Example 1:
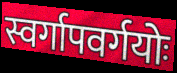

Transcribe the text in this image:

स्वर्गापवर्गयोः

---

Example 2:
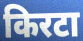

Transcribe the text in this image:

किरटा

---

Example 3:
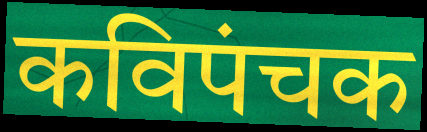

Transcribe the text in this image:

कविपंचक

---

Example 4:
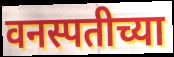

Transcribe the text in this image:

वनस्पतीच्या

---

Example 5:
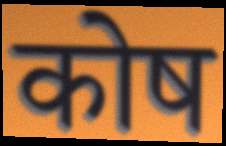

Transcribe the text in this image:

कोष